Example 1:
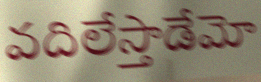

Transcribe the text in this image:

వదిలేస్తాడేమో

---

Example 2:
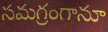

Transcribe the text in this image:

సమగ్రంగానూ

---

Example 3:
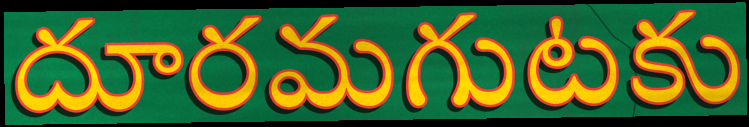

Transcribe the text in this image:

దూరమగుటకు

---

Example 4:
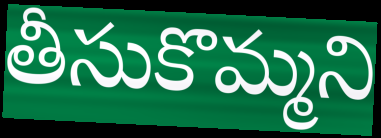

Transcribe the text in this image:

తీసుకొమ్మని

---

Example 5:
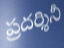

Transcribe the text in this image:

ప్రదర్శినీ